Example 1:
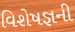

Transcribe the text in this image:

વિશેષજ્ઞની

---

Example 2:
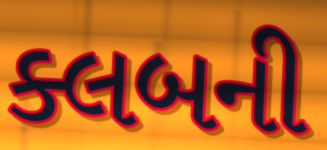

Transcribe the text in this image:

ક્લબની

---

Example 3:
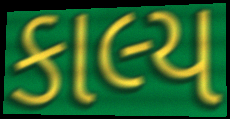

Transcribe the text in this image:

કાલ્ય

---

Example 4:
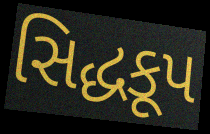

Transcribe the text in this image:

સિદ્ધકૂપ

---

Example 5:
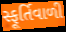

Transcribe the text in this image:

સ્ફૂર્તિવાળી